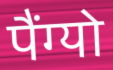
पैंग्यो